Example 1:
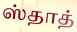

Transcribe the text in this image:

ஸ்தாத்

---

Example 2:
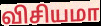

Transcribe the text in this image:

விசியமா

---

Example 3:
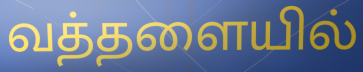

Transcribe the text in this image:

வத்தளையில்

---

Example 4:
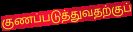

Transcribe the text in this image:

குணப்படுத்துவதற்குப்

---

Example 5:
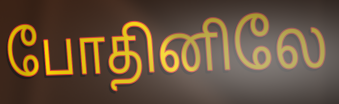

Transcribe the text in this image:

போதினிலே